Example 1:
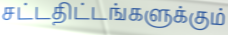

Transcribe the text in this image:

சட்டதிட்டங்களுக்கும்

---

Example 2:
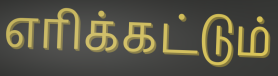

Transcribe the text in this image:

எரிக்கட்டும்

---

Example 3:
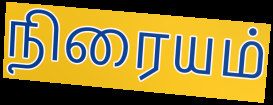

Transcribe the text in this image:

நிரையம்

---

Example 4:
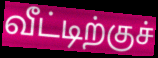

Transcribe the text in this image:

வீட்டிற்குச்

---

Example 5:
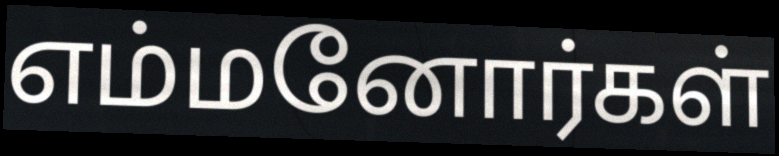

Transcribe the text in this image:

எம்மனோர்கள்